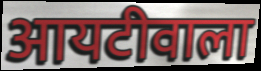
आयटीवाला